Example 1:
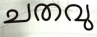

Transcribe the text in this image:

ചതവു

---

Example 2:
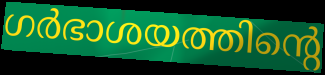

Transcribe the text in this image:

ഗർഭാശയത്തിന്റെ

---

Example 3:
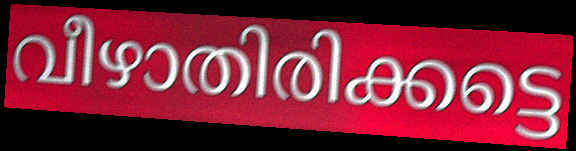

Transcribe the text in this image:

വീഴാതിരിക്കട്ടെ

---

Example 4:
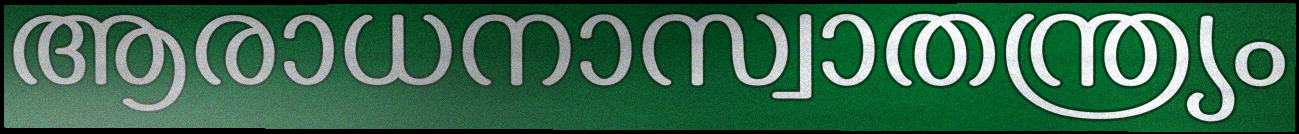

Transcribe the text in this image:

ആരാധനാസ്വാതന്ത്ര്യം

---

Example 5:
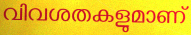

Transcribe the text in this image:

വിവശതകളുമാണ്